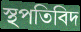
স্থপতিবিদ